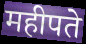
महीपते